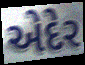
એદેર